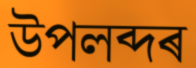
উপলব্দৰ